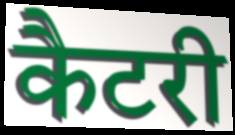
कैटरी